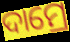
ଦାମ୍ରେ